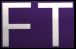
FT